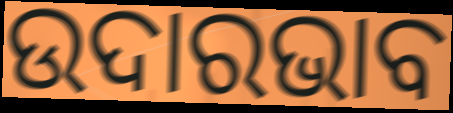
ଉଦାରଭାବ